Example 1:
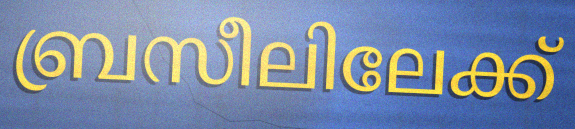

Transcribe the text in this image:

ബ്രസീലിലേക്ക്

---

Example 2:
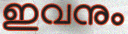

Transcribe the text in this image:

ഇവനും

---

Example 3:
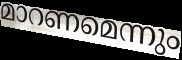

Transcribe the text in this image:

മാറണമെന്നും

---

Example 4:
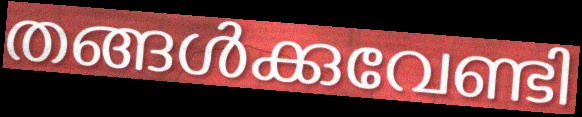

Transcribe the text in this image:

തങ്ങൾക്കുവേണ്ടി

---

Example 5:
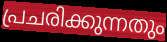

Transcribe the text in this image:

പ്രചരിക്കുന്നതും